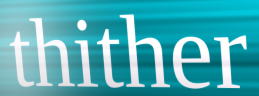
thither